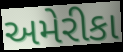
અમેરીકા